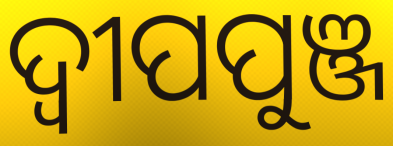
ଦ୍ଵୀପପୁଞ୍ଜ